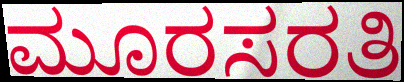
ಮೂರಸರತಿ